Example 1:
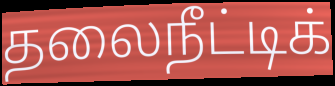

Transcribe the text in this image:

தலைநீட்டிக்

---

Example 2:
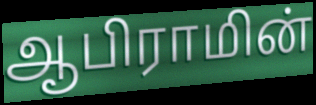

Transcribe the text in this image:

ஆபிராமின்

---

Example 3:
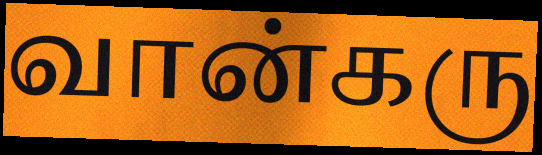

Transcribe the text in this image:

வான்கரு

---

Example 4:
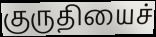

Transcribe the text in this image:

குருதியைச்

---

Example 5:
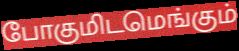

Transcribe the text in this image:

போகுமிடமெங்கும்